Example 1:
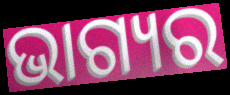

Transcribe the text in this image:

ଭାଗ୍ୟର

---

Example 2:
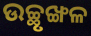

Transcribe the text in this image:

ଉଚ୍ଛୃଙ୍ଖଳ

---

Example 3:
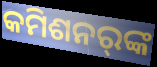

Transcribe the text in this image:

କମିଶନର୍‌ଙ୍କ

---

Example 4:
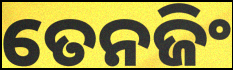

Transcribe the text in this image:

ତେନଜିଂ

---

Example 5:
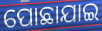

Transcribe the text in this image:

ପୋଛାଯାଇ